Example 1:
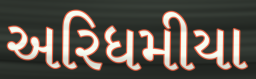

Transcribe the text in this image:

અરિધમીયા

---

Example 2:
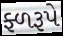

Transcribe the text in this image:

ફ્ળરૂપે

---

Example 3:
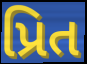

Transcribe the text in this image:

પ્રિત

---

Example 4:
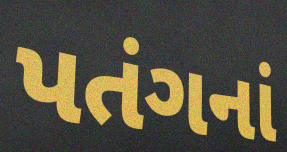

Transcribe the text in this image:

પતંગનાં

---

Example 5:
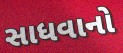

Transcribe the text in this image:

સાધવાનો